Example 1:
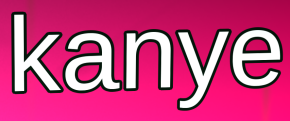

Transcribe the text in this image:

kanye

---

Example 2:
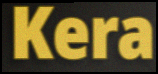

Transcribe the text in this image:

Kera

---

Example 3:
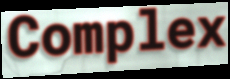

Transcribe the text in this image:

Complex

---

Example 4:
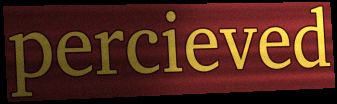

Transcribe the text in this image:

percieved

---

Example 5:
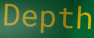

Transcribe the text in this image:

Depth